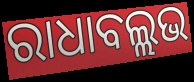
ରାଧାବଲ୍ଲଭ